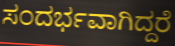
ಸಂದರ್ಭವಾಗಿದ್ದರೆ